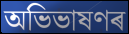
অভিভাষণৰ